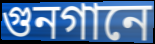
গুনগানে